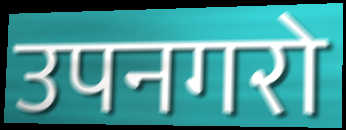
उपनगरो